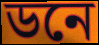
ডনে